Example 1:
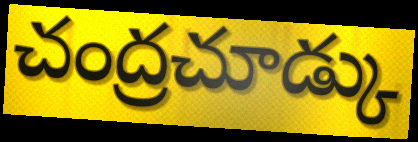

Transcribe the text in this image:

చంద్రచూడ్కు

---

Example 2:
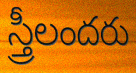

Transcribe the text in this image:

స్త్రీలందరు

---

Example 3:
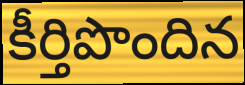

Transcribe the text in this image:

కీర్తిపొందిన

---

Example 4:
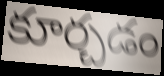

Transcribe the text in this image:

కూర్చడం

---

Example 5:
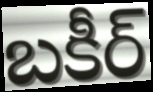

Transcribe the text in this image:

బకీర్